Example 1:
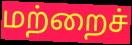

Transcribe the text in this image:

மற்றைச்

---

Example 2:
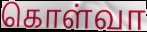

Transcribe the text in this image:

கொள்வா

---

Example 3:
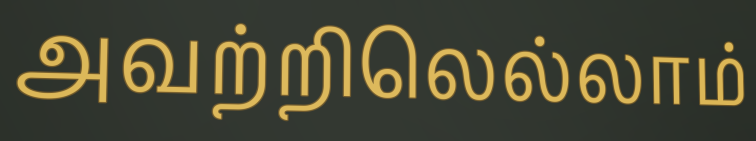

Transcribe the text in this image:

அவற்றிலெல்லாம்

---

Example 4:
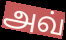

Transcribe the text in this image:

அவ்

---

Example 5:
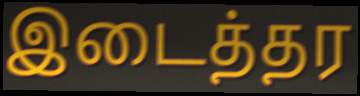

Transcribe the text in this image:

இடைத்தர